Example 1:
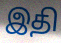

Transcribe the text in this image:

இதி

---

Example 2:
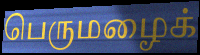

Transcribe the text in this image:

பெருமழைக்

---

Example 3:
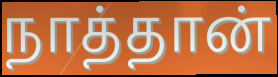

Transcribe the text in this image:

நாத்தான்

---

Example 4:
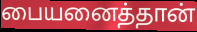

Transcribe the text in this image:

பையனைத்தான்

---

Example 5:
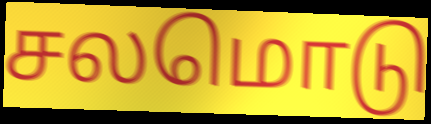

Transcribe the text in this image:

சலமொடு